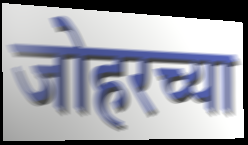
जोहरच्या